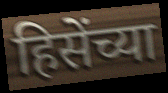
हिसेंच्या